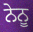
ਨੇਨੂ